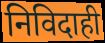
निविदाही